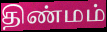
திண்மம்